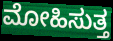
ಮೋಹಿಸುತ್ತ